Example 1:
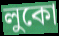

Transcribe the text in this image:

লুকো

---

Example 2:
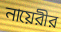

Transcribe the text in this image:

নায়েরীর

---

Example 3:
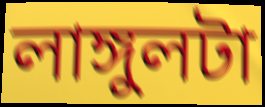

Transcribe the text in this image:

লাঙ্গুলটা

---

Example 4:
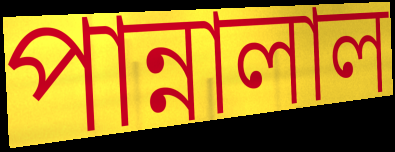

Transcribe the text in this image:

পান্নালাল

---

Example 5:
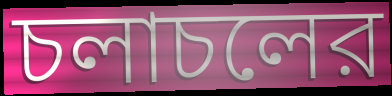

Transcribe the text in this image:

চলাচলের